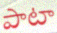
పాటా